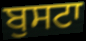
ਬੁਸਟਾ